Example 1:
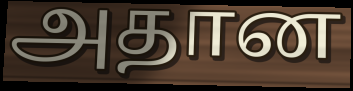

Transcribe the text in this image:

அதான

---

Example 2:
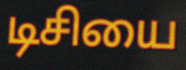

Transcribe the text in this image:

டிசியை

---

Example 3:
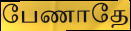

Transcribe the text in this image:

பேணாதே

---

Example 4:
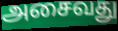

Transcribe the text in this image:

அசைவது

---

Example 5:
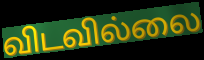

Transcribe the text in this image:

விடவில்லை